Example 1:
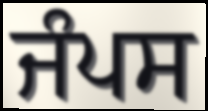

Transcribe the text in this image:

ਜੰਪਸ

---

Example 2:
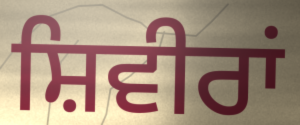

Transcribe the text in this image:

ਸ਼ਿਵੀਰਾਂ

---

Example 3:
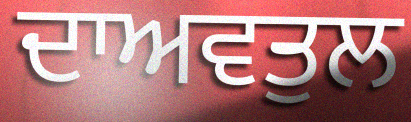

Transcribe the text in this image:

ਦਾਅਵਤੁਲ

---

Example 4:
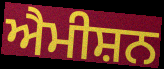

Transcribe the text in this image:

ਐਮੀਸ਼ਨ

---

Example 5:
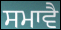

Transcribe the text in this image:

ਸਮਾਵੈ